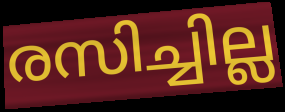
രസിച്ചില്ല